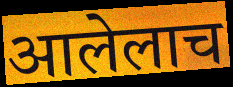
आलेलाच